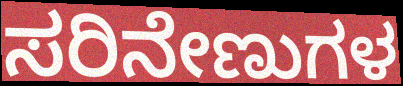
ಸರಿನೇಣುಗಳ